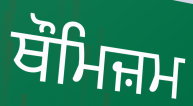
ਥੌਮਿਜ਼ਮ